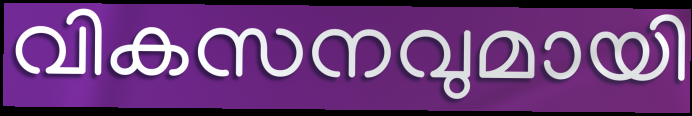
വികസനവുമായി